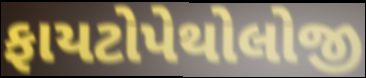
ફાયટોપેથોલોજી